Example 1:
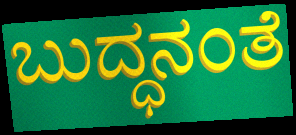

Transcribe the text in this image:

ಬುದ್ಧನಂತೆ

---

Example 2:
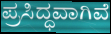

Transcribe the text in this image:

ಪ್ರಸಿದ್ಧವಾಗಿವೆ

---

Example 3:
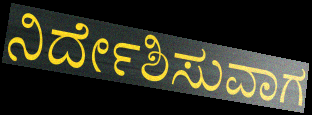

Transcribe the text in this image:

ನಿರ್ದೇಶಿಸುವಾಗ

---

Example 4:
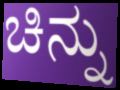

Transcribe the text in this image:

ಚಿನ್ನು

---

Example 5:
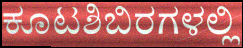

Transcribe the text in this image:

ಕೂಟಶಿಬಿರಗಳಲ್ಲಿ